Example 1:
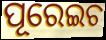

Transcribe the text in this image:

ପୂରେଇଚ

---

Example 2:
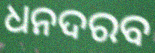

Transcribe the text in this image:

ଧନଦରବ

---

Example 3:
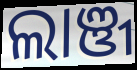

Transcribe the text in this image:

ଲାଞ୍ଜ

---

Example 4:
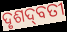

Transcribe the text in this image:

ଦୃଶଦ୍‌ବତୀ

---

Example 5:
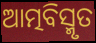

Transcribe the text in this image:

ଆତ୍ମବିସ୍ମୃତ